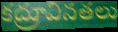
కద్రూవినతలు